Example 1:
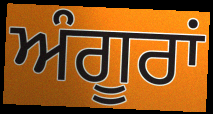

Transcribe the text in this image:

ਅੰਗੂਰਾਂ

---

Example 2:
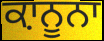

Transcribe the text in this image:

ਕ਼ਾਨੂਨਾ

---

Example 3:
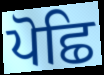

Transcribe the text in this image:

ਪੋਛਿ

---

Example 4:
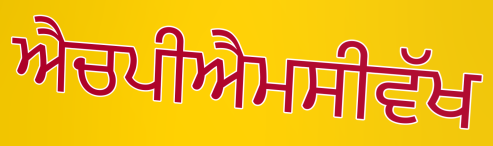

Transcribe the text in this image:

ਐਚਪੀਐਮਸੀਵੱਖ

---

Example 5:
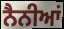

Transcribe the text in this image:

ਨੈਨੀਆਂ